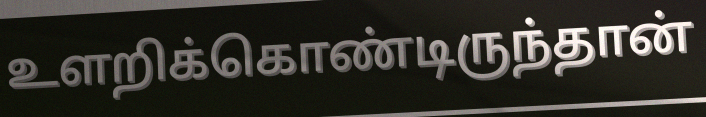
உளறிக்கொண்டிருந்தான்